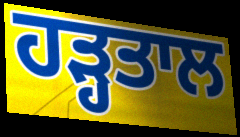
ਹੜ੍ਹਤਾਲ